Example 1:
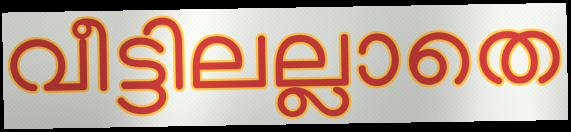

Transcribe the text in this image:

വീട്ടിലല്ലാതെ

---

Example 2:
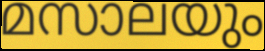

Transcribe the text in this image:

മസാലയും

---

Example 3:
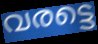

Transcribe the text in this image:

വരട്ടെ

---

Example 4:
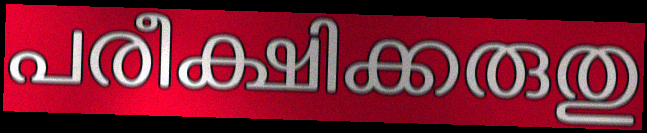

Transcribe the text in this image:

പരീക്ഷിക്കരുതു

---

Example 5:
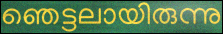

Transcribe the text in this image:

ഞെട്ടലായിരുന്നു